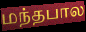
மந்தபால